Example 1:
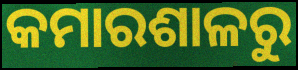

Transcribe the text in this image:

କମାରଶାଳରୁ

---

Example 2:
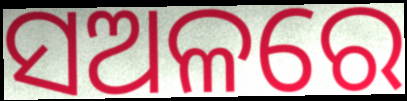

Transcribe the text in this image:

ସଅଳରେ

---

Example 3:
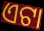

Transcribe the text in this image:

ଏଟା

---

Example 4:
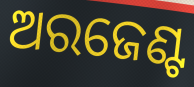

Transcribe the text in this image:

ଅରଜେଣ୍ଟ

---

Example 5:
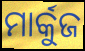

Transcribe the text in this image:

ମାର୍କୁଜ